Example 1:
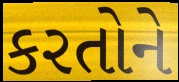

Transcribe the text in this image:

કરતોને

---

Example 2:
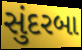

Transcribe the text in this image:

સુંદરબા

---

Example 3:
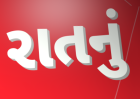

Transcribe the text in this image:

રાતનું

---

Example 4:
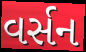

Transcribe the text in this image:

વર્સન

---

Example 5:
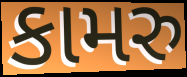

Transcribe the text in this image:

કામરુ